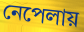
নেপেলায়